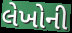
લેખોની